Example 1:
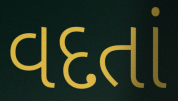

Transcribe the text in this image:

વદતાં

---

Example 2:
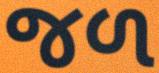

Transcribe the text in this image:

જળ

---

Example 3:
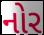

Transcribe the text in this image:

નોર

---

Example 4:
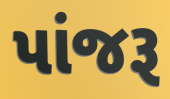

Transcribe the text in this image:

પાંજરૂ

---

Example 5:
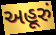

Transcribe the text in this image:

અહૂરું